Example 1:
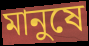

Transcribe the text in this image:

মানুষে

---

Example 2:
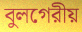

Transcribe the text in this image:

বুলগেরীয়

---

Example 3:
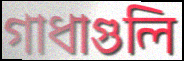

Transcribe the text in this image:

গাধাগুলি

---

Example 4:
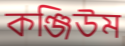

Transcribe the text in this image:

কঞ্জিউম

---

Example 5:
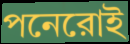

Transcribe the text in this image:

পনেরোই